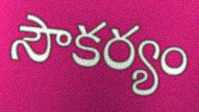
సౌకర్యం